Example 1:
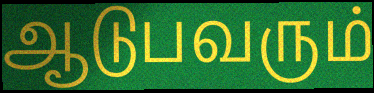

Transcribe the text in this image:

ஆடுபவரும்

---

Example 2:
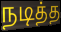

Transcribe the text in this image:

நடித்த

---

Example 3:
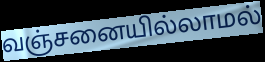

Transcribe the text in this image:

வஞ்சனையில்லாமல்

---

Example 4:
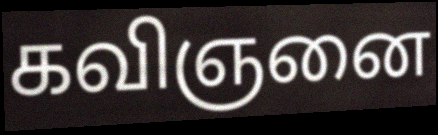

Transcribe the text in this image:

கவிஞனை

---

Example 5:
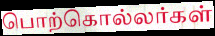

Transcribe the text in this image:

பொற்கொல்லர்கள்